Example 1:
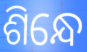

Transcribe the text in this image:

ଶିନ୍ଧେ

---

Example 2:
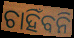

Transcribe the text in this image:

ଚାହିଁବନି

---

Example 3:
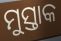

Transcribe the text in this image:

ମୁସ୍ତାକ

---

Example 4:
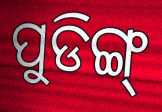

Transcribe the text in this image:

ପୁଡିଙ୍ଗ୍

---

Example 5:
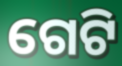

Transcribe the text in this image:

ଗେଟି